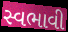
સ્વભાવી